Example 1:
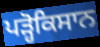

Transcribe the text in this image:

ਪੜ੍ਹੋਕਿਸਾਨ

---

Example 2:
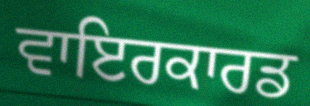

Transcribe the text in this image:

ਵਾਇਰਕਾਰਡ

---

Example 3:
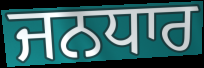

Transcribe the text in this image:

ਜਨਧਾਰ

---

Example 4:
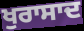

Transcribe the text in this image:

ਖੁਰਾਸਾਦ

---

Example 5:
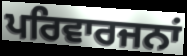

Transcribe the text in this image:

ਪਰਿਵਾਰਜਨਾਂ